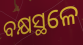
ବକ୍ଷସ୍ଥଳେ